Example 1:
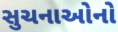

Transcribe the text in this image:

સુચનાઓનો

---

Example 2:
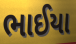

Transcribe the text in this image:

ભાઈયા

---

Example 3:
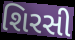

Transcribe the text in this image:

શિરસી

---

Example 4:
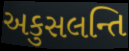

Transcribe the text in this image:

અકુસલન્તિ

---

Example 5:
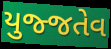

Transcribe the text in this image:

યુજ્જતેવ